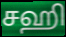
சஹி